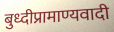
बुध्दीप्रामाण्यवादी